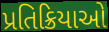
પ્રતિક્રિયાઓ